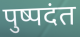
पुष्पदंत